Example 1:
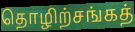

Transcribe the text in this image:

தொழிற்சங்கத்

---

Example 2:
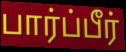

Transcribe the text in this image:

பார்ப்பீர்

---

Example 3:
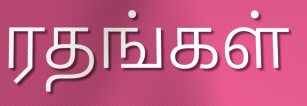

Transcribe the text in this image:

ரதங்கள்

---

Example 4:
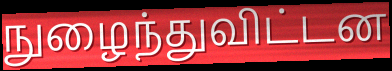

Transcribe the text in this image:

நுழைந்துவிட்டன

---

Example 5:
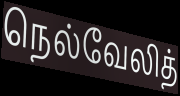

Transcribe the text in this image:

நெல்வேலித்